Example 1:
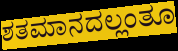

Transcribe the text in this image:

ಶತಮಾನದಲ್ಲಂತೂ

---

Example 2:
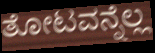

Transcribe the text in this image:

ತೋಟವನ್ನೆಲ್ಲ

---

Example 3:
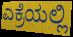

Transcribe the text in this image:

ಎಕ್ರೆಯಲ್ಲಿ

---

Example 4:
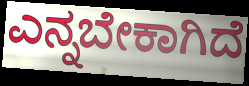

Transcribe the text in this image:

ಎನ್ನಬೇಕಾಗಿದೆ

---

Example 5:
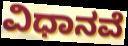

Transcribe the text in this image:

ವಿಧಾನವೆ